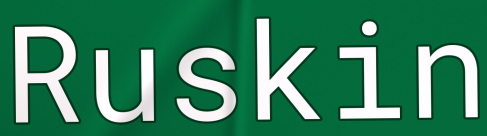
Ruskin